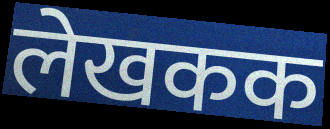
लेखकक